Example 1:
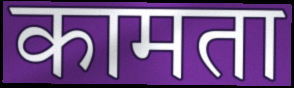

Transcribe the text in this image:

कामता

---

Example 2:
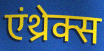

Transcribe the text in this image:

एंथ्रेक्स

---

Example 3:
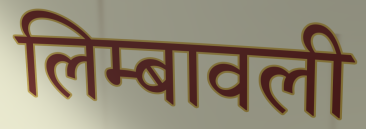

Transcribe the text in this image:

लिम्बावली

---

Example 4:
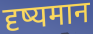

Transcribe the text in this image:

दृष्यमान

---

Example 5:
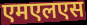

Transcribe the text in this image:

एमएलएस